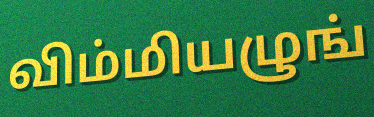
விம்மியழுங்